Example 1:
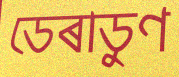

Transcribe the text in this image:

ডেৰাডুণ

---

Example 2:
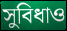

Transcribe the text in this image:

সুবিধাও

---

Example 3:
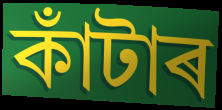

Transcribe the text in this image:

কাঁটাৰ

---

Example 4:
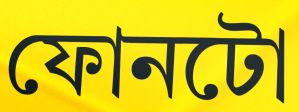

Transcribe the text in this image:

ফোনটো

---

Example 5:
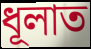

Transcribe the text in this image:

ধূলাত